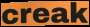
creak